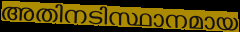
അതിനടിസ്ഥാനമായ